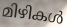
മിഴികൾ